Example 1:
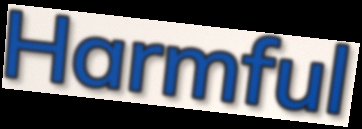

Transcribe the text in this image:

Harmful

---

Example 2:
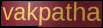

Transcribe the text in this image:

vakpatha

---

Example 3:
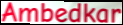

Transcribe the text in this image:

Ambedkar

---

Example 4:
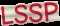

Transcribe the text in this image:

LSSP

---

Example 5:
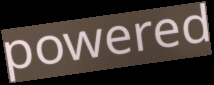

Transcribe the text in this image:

powered